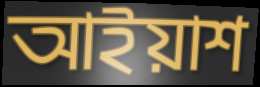
আইয়াশ